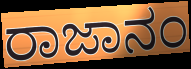
ರಾಜಾನಂ